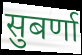
सुबर्णा